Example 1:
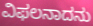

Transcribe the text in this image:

ವಿಫಲನಾದನು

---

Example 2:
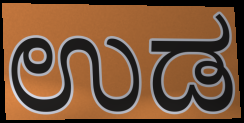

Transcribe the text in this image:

ಉಡ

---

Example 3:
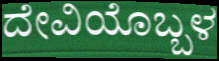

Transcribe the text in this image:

ದೇವಿಯೊಬ್ಬಳ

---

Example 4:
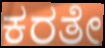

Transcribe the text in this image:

ಕರತೇ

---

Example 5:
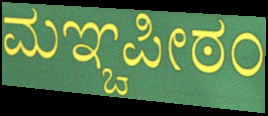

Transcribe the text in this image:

ಮಞ್ಚಪೀಠಂ